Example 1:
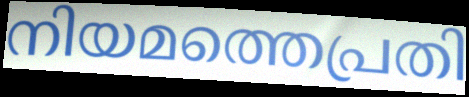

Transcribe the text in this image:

നിയമത്തെപ്രതി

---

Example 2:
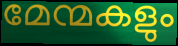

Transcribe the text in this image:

മേന്മകളും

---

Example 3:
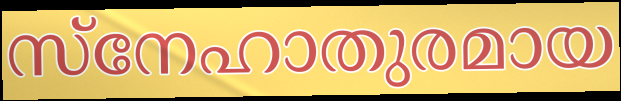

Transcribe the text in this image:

സ്നേഹാതുരമായ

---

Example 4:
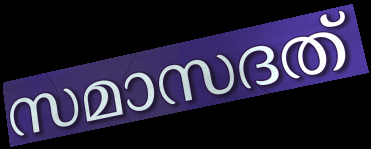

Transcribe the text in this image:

സമാസദത്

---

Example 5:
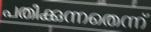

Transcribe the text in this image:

പതിക്കുന്നതെന്ന്